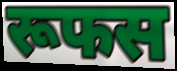
रूफस